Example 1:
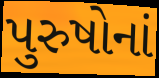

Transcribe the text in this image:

પુરુષોનાં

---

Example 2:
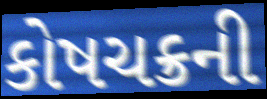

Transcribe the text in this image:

કોષચક્રની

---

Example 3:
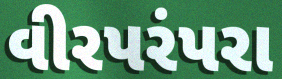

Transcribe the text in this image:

વીરપરંપરા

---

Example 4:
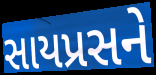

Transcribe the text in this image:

સાયપ્રસને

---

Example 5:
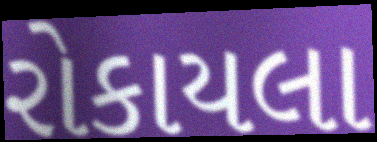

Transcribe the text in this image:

રોકાયલા